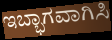
ಇಬ್ಭಾಗವಾಗಿಸಿ